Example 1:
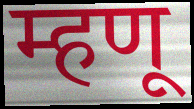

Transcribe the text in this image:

म्हणू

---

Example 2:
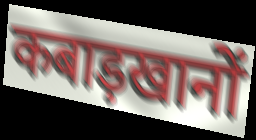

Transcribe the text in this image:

कबाड़खानों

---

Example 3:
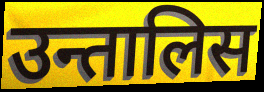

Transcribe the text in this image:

उन्तालिस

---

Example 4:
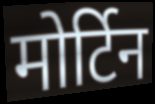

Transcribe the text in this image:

मोर्टिन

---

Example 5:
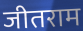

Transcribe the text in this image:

जीतराम